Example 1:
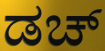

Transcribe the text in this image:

ಡಚ್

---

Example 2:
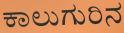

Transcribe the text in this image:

ಕಾಲುಗುರಿನ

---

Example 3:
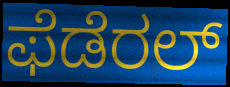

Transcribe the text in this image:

ಫೆಡೆರಲ್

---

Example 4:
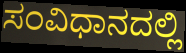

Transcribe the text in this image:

ಸಂವಿಧಾನದಲ್ಲಿ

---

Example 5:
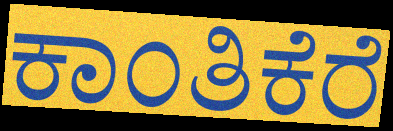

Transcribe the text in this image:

ಕಾಂತಿಕೆರೆ